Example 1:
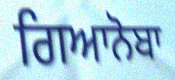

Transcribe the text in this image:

ਗਿਆਨੋਬਾ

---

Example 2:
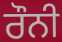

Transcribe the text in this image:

ਰੌਨੀ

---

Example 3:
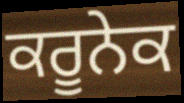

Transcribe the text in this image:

ਕਰੂਨੇਕ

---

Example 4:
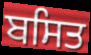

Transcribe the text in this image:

ਬਸਿਤ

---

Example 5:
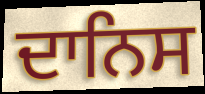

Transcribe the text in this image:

ਦਾਨਿਸ